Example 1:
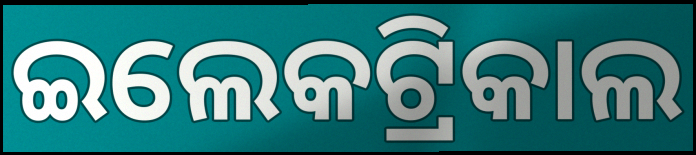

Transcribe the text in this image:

ଇଲେକଟ୍ରିକାଲ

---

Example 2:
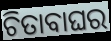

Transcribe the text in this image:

ଚିତାବାଘର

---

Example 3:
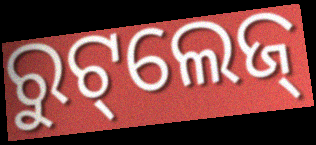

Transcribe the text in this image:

ରୁଟ୍‌ଲେଜ୍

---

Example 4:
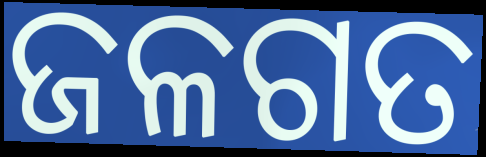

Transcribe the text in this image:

ଜଳଗତ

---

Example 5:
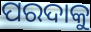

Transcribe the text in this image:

ପରଦାକୁ